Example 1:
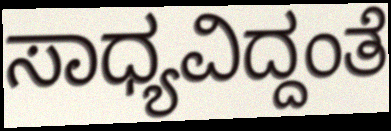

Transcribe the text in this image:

ಸಾಧ್ಯವಿದ್ದಂತೆ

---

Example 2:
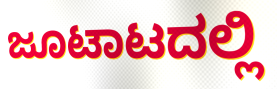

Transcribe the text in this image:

ಜೂಟಾಟದಲ್ಲಿ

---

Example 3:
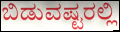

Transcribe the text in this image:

ಬಿಡುವಷ್ಟರಲ್ಲಿ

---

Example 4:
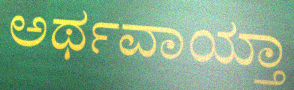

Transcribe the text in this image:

ಅರ್ಥವಾಯ್ತಾ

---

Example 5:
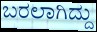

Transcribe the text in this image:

ಬರಲಾಗಿದ್ದು